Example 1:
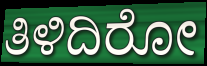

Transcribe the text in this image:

ತಿಳಿದಿರೋ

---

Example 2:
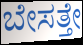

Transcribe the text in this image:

ಬೇಸತ್ತೇ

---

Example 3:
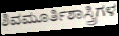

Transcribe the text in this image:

ಶಿವಮೂರ್ತಿಶಾಸ್ತ್ರಿಗಳ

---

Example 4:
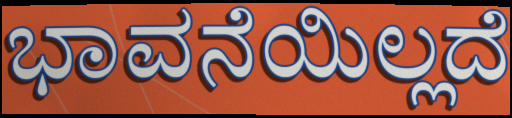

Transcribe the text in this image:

ಭಾವನೆಯಿಲ್ಲದೆ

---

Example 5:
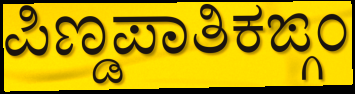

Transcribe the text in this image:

ಪಿಣ್ಡಪಾತಿಕಙ್ಗಂ